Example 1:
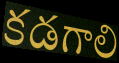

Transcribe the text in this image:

కడగాలి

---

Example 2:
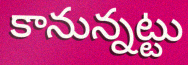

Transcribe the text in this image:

కానున్నట్టు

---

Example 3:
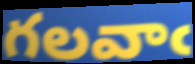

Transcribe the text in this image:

గలవాఁ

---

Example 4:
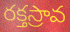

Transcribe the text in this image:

రక్తస్రావ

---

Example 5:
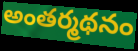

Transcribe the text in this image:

అంతర్మథనం